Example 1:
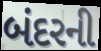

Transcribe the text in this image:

બંદરની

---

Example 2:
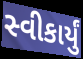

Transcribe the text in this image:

સ્વીકાર્યું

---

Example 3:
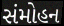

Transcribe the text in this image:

સંમોહન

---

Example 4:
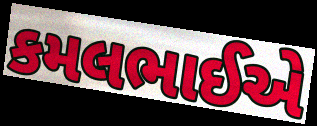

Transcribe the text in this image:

કમલભાઈએ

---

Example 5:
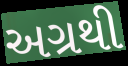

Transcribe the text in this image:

અગ્રથી